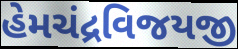
હેમચંદ્રવિજયજી